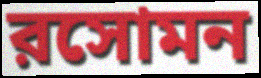
রসোমন